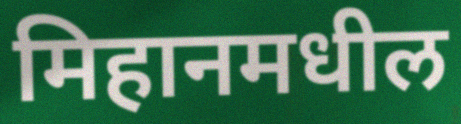
मिहानमधील